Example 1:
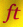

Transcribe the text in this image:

ft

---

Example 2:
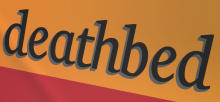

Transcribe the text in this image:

deathbed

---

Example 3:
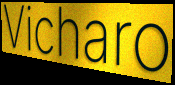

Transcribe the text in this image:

Vicharo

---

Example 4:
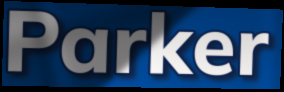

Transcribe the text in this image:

Parker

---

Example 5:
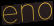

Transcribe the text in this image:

eno